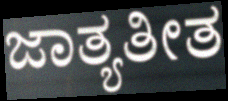
ಜಾತ್ಯತೀತ